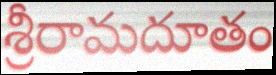
శ్రీరామదూతం